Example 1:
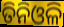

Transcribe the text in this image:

ତିନିଓଳି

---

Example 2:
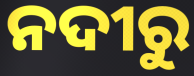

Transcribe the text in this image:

ନଦୀରୁ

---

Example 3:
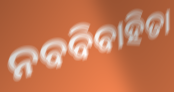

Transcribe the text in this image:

ନବବିବାହିତା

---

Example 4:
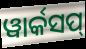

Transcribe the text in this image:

ୱାର୍କସପ୍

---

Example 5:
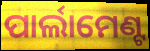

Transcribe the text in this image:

ପାର୍ଲାମେଣ୍ଟ